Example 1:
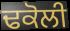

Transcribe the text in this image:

ਢਕੋਲੀ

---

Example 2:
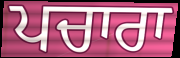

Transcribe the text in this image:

ਪਚਾਰਾ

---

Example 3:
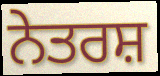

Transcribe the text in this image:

ਨੇਤਰਸ਼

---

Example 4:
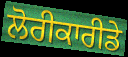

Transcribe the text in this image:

ਲੋਰੀਕਾਰੀਡੇ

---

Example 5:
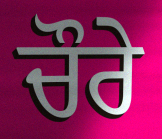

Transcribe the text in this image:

ਚੌਰੇ